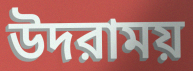
উদরাময়